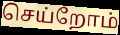
செய்றோம்